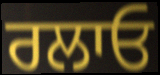
ਰਲਾਓ